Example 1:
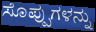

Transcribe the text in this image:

ಸೊಪ್ಪುಗಳನ್ನು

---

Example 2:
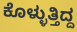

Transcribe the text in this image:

ಕೊಳ್ಳುತ್ತಿದ್ದ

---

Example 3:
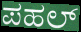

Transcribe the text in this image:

ಪಹಲ್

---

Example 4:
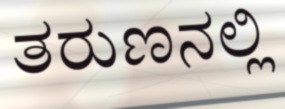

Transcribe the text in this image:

ತರುಣನಲ್ಲಿ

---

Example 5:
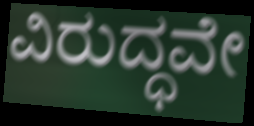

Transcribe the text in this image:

ವಿರುದ್ಧವೇ